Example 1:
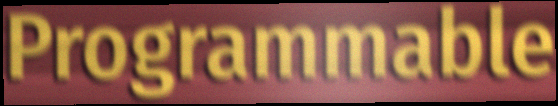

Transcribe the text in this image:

Programmable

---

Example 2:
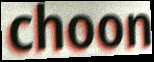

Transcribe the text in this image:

choon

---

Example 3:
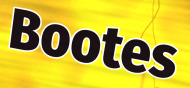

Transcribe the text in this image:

Bootes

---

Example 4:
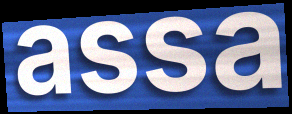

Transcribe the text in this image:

assa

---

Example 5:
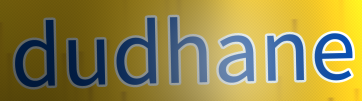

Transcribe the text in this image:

dudhane